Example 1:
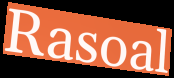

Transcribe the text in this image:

Rasoal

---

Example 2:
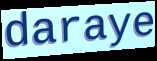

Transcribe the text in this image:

daraye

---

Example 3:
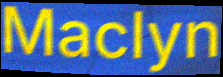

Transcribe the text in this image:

Maclyn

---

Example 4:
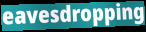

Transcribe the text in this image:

eavesdropping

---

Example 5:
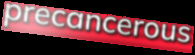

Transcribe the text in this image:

precancerous